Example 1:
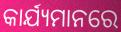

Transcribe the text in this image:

କାର୍ଯ୍ୟମାନରେ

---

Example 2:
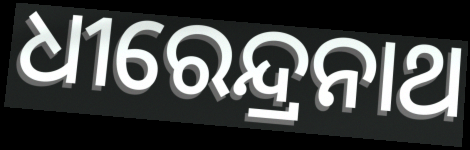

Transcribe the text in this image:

ଧୀରେନ୍ଦ୍ରନାଥ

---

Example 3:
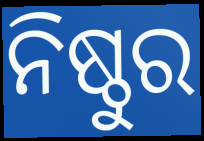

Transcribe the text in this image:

ନିଷ୍ଠୁର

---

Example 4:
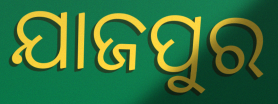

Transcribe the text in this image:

ଯାଜପୁର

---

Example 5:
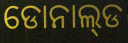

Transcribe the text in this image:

ଡୋନାଲ୍‌ଡ